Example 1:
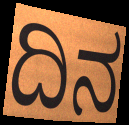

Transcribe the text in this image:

ದಿನ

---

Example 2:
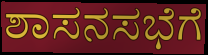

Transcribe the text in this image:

ಶಾಸನಸಭೆಗೆ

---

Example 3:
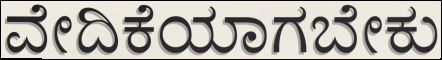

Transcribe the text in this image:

ವೇದಿಕೆಯಾಗಬೇಕು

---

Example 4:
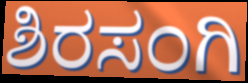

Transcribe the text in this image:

ಶಿರಸಂಗಿ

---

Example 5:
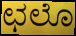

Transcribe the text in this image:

ಛಲೊ